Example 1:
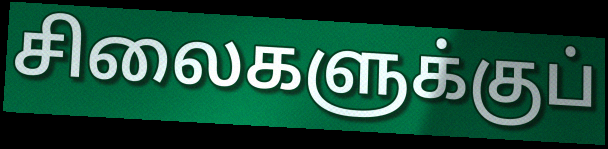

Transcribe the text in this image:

சிலைகளுக்குப்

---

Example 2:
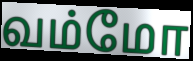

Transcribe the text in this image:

வம்மோ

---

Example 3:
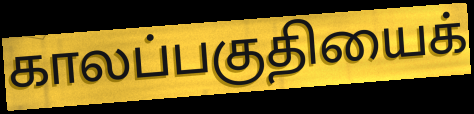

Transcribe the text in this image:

காலப்பகுதியைக்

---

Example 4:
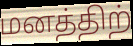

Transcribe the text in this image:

மனத்திற்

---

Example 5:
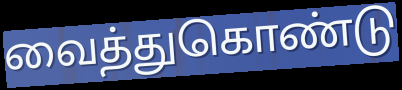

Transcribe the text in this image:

வைத்துகொண்டு